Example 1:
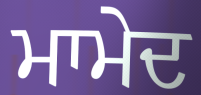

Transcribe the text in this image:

ਮਾਮੇਦ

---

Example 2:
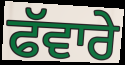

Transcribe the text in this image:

ਫੱਵਾਰੇ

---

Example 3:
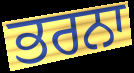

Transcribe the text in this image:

ਭਰਨਾ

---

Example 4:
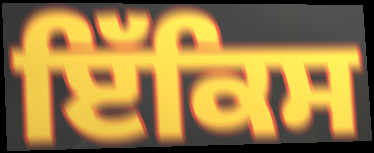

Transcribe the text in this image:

ਇੱਕਿਸ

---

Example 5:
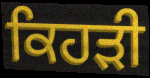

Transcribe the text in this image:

ਕਿਹੜੀ